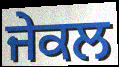
ਜੇਕਲ